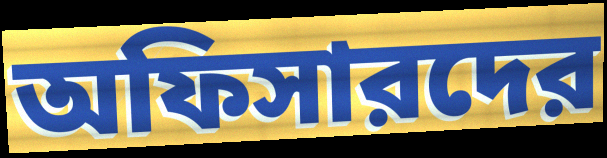
অফিসারদের